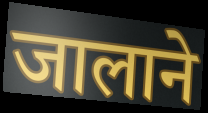
जालाने